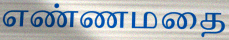
எண்ணமதை